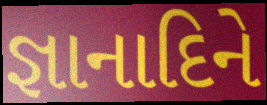
જ્ઞાનાદિને